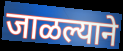
जाळल्याने